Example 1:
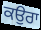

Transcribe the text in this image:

ਕਉਰਾ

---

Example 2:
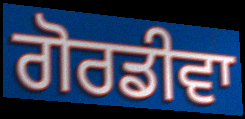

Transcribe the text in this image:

ਗੋਰਡੀਵਾ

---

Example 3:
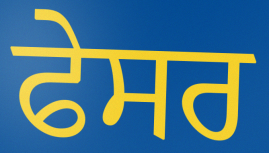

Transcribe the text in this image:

ਫੇਸਰ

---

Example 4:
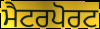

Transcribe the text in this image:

ਮੈਟਰਪੋਰਟ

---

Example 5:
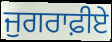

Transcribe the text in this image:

ਜੁਗਰਾਫ਼ੀਏ